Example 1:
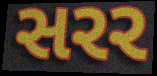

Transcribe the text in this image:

સરર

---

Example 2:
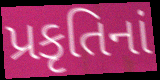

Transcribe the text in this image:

પ્રકૃતિનાં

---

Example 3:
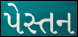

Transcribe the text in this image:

પેસ્તન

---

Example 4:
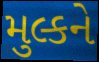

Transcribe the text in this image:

મુલ્કને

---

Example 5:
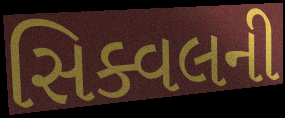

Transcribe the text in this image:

સિક્વલની